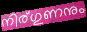
നിര്ഗുണനും